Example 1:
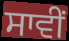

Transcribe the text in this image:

ਸਾਵੀਂ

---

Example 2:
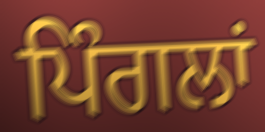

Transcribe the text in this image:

ਪਿੰਗਲਾਂ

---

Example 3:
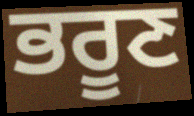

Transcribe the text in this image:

ਭਰੂਣ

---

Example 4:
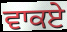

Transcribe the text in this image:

ਵਾਕਏ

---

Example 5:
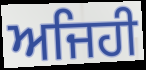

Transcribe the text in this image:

ਅਜਿਹੀ